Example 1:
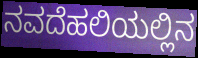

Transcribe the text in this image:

ನವದೆಹಲಿಯಲ್ಲಿನ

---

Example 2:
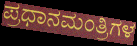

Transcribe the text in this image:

ಪ್ರಧಾನಮಂತ್ರಿಗಳ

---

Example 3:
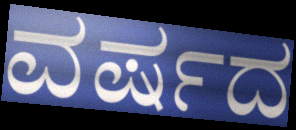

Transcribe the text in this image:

ವರ್ಷದ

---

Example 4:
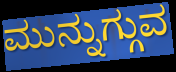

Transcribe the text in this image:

ಮುನ್ನುಗ್ಗುವ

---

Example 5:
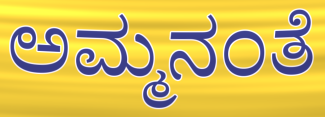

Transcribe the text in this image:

ಅಮ್ಮನಂತೆ